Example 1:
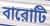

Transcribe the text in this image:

বারোটি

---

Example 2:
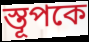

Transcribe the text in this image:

স্তূপকে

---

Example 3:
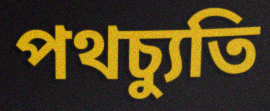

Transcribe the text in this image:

পথচ্যুতি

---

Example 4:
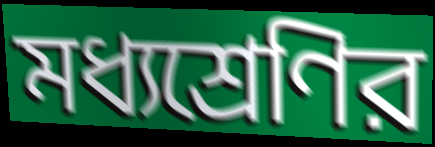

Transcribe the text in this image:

মধ্যশ্রেণির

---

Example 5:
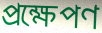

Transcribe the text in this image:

প্রক্ষেপণ